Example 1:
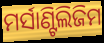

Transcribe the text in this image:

ମର୍ସାଣ୍ଟିଲିଜିମ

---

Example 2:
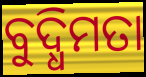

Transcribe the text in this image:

ବୁଦ୍ଧିମତା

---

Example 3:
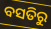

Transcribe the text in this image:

ବସତିରୁ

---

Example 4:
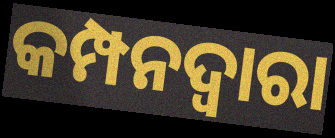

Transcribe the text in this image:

କମ୍ପନଦ୍ୱାରା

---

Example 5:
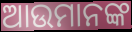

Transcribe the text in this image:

ଆଉମାନଙ୍କ